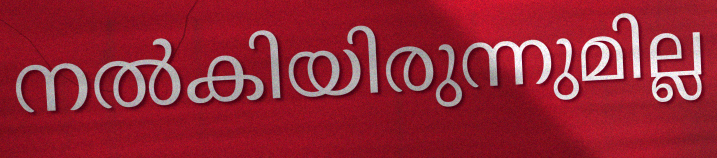
നൽകിയിരുന്നുമില്ല